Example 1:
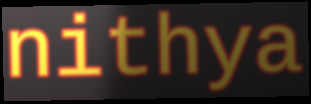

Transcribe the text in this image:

nithya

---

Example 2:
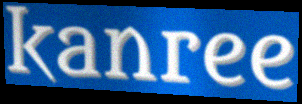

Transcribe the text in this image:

kanree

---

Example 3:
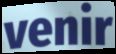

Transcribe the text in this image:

venir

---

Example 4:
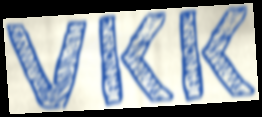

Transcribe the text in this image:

VKK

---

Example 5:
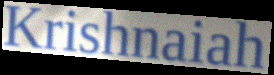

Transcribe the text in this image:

Krishnaiah